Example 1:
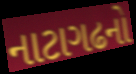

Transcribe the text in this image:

નાટાગઢનો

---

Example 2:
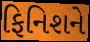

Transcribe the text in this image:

ફિનિશને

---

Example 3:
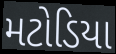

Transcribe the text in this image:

મટોડિયા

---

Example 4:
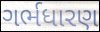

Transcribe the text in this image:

ગર્ભધારણ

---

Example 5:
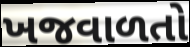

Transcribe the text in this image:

ખજવાળતો